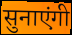
सुनाएंगी